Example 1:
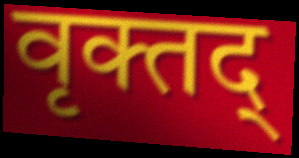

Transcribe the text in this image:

वृक्तद्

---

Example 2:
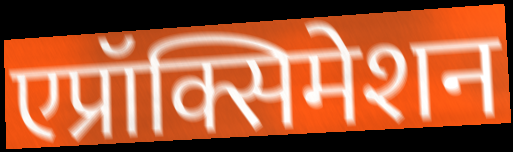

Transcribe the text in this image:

एप्रॉक्सिमेशन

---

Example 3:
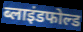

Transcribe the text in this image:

ब्लाइंडफोल्ड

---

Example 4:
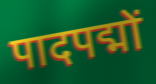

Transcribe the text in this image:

पादपद्मों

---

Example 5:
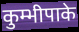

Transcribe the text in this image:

कुम्भीपाके